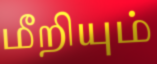
மீறியும்